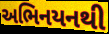
અભિનયનથી